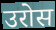
उरोस